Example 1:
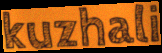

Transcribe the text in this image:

kuzhali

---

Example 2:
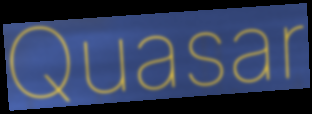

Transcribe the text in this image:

Quasar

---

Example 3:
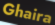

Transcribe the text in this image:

Ghaira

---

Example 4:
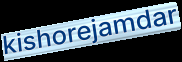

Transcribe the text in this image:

kishorejamdar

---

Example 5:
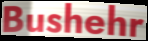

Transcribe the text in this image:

Bushehr